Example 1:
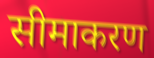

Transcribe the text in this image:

सीमाकरण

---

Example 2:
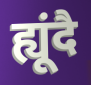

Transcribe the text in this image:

ह्यूंदै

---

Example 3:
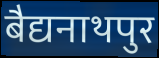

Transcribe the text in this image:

बैद्यनाथपुर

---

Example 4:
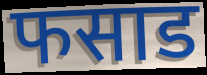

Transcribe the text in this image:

फसाड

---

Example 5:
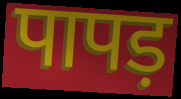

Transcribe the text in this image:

पापड़